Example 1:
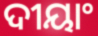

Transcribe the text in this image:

ଦୀୟାଂ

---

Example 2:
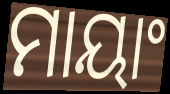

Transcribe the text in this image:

ମାୟାଂ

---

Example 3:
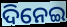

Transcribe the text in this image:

ଦିନେଇ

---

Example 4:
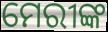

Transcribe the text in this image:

ମେରୀଙ୍କ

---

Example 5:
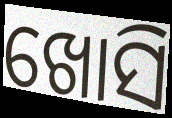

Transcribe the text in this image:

ଖୋସି